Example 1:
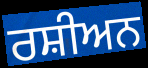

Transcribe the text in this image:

ਰਸ਼ੀਅਨ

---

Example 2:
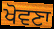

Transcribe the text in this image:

ਖੋਵਣਾ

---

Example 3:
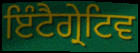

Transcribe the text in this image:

ਇੰਟੈਗ੍ਰੇਟਿਵ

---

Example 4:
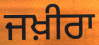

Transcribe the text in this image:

ਜਖ਼ੀਰਾ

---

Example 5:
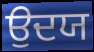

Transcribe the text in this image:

ਉਦਯ